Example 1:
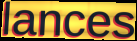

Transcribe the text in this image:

lances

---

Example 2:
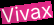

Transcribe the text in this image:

Vivax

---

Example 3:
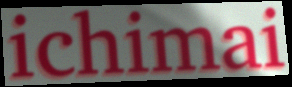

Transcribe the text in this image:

ichimai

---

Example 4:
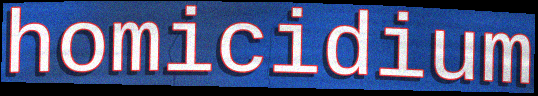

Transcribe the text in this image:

homicidium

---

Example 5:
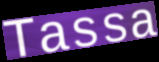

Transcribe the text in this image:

Tassa